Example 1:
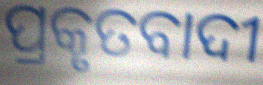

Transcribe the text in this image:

ପ୍ରକୃତବାଦୀ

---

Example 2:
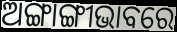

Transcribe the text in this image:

ଅଙ୍ଗାଙ୍ଗୀଭାବରେ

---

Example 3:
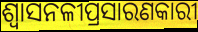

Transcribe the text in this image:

ଶ୍ୱାସନଳୀପ୍ରସାରଣକାରୀ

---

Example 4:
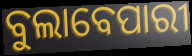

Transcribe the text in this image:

ବୁଲାବେପାରୀ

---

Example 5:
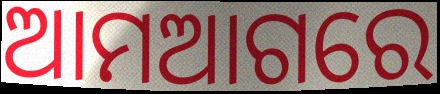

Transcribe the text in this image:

ଆମଆଗରେ